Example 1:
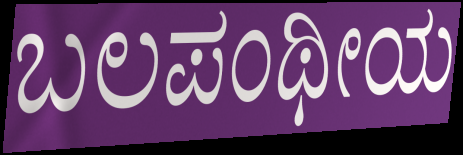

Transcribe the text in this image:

ಬಲಪಂಥೀಯ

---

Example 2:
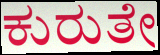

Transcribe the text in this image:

ಕುರುತೇ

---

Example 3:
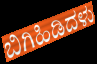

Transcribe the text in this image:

ಬಿಗಿಹಿಡಿದಳು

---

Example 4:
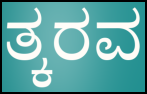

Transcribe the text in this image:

ತ್ಕರವ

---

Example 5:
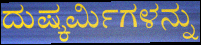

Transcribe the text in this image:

ದುಷ್ಕರ್ಮಿಗಳನ್ನು